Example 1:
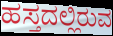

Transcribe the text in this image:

ಹಸ್ತದಲ್ಲಿರುವ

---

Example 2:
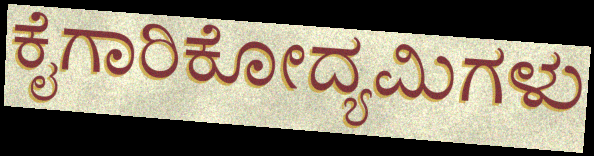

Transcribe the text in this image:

ಕೈಗಾರಿಕೋದ್ಯಮಿಗಳು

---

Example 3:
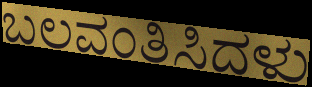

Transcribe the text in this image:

ಬಲವಂತಿಸಿದಳು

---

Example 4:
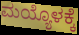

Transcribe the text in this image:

ಮಯ್ಯೊಳಕ್ಕೆ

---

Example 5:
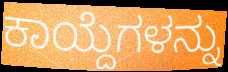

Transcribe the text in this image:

ಕಾಯ್ದೆಗಳನ್ನು